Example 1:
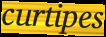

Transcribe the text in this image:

curtipes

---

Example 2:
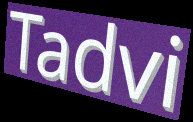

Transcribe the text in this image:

Tadvi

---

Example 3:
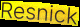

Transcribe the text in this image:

Resnick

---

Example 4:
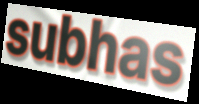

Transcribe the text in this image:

subhas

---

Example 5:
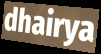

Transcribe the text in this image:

dhairya